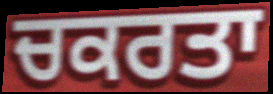
ਚਕਰਤਾ